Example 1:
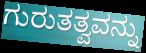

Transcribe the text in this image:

ಗುರುತತ್ವವನ್ನು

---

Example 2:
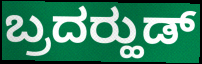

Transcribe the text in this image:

ಬ್ರದರ್‍ಹುಡ್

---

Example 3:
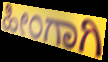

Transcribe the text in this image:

ಹೀಂಗಾಗಿ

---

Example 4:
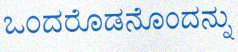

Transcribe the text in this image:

ಒಂದರೊಡನೊಂದನ್ನು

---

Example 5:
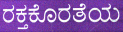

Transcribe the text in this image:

ರಕ್ತಕೊರತೆಯ